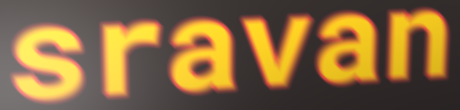
sravan